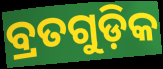
ବ୍ରତଗୁଡ଼ିକ